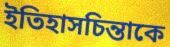
ইতিহাসচিন্তাকে